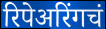
रिपेअरिंगचं